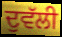
ਦੁਵੱਲੀ